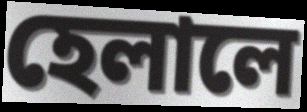
হেলালে